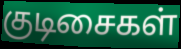
குடிசைகள்